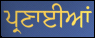
ਪ੍ਰਣਾਈਆਂ